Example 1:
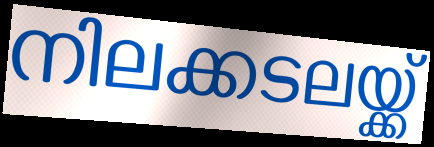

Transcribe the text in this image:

നിലക്കടലയ്ക്ക്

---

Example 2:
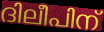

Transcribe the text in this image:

ദിലീപിന്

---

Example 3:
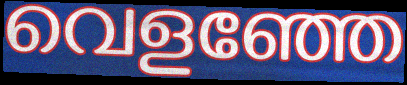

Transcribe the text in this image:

വെളഞ്ഞേ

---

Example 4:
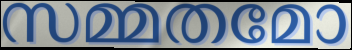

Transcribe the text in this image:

സമ്മതമോ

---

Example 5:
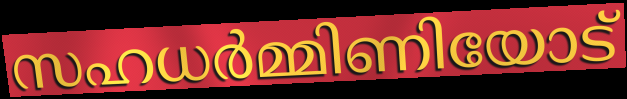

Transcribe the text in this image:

സഹധർമ്മിണിയോട്